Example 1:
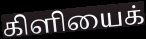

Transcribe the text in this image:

கிளியைக்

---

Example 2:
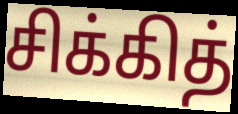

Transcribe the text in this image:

சிக்கித்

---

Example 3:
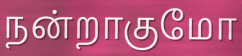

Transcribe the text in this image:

நன்றாகுமோ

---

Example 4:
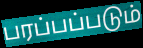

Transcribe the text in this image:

பரப்பப்படும்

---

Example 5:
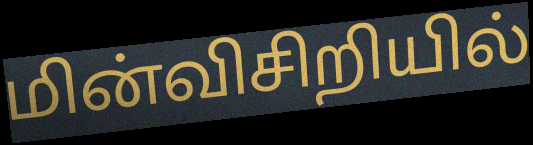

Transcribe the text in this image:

மின்விசிறியில்